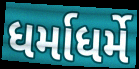
ધર્માધર્મે